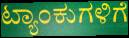
ಟ್ಯಾಂಕುಗಳಿಗೆ